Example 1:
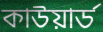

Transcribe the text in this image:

কাউয়ার্ড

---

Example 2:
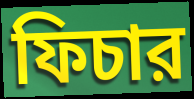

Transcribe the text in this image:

ফিচার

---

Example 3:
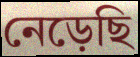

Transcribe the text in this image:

নেড়েছি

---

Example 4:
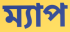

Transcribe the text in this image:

ম্যাপ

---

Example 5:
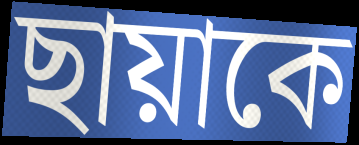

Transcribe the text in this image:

ছায়াকে